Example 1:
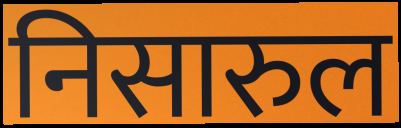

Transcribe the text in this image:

निसारुल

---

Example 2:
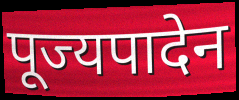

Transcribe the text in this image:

पूज्यपादेन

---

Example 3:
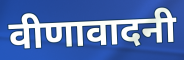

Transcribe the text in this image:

वीणावादनी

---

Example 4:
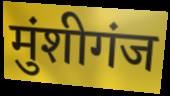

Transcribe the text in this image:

मुंशीगंज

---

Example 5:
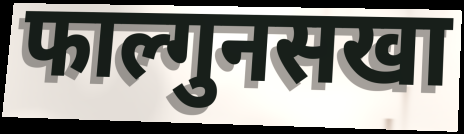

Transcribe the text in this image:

फाल्गुनसखा